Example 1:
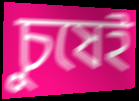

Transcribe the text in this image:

চুষেই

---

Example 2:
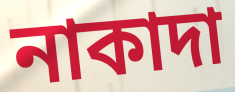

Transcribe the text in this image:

নাকাদা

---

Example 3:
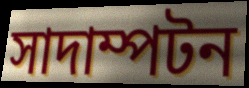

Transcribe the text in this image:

সাদাম্পটন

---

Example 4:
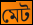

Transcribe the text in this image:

মেট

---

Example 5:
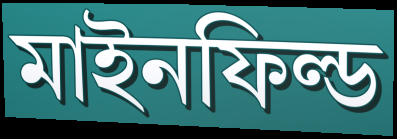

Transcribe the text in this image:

মাইনফিল্ড